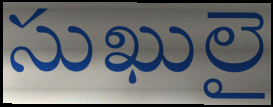
సుఖులై